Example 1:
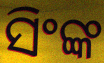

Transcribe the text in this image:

ସିଂଙ୍କ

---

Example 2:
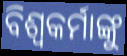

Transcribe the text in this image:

ବିଶ୍ଵକର୍ମାଙ୍କୁ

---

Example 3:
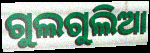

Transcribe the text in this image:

ଗୁଲଗୁଲିଆ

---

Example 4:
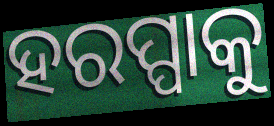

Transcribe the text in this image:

ହରପ୍ପାକୁ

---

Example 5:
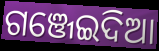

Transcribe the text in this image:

ଗଞ୍ଜେଇଦିଆ